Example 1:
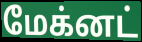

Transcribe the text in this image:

மேக்னட்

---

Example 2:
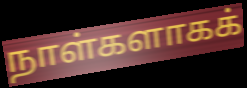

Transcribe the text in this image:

நாள்களாகக்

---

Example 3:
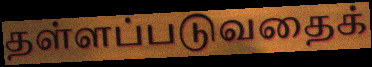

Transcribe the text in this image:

தள்ளப்படுவதைக்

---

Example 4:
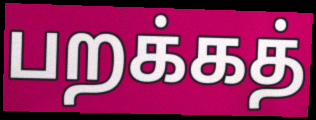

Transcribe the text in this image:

பறக்கத்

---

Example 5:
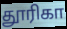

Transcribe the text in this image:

தூரிகா